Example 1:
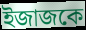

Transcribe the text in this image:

ইজাজকে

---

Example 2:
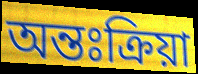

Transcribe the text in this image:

অন্তঃক্রিয়া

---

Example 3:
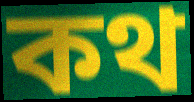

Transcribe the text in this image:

কথ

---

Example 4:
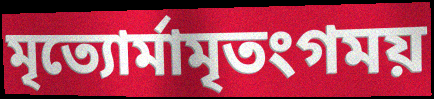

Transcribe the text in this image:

মৃত্যোর্মামৃতংগময়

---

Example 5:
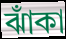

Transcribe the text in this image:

ঝাঁকা